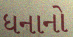
ધનાનો